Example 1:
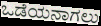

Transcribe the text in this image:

ಒಡೆಯನಾಗಲು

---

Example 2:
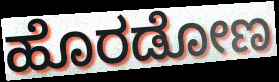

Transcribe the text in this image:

ಹೊರಡೋಣ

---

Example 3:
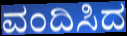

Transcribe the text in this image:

ವಂದಿಸಿದ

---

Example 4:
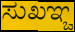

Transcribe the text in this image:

ಸುಖಞ್ಚ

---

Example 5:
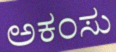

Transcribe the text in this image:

ಅಕಂಸು